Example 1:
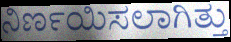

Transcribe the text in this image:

ನಿರ್ಣಯಿಸಲಾಗಿತ್ತು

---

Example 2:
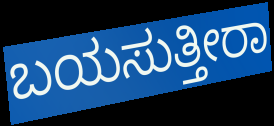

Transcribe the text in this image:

ಬಯಸುತ್ತೀರಾ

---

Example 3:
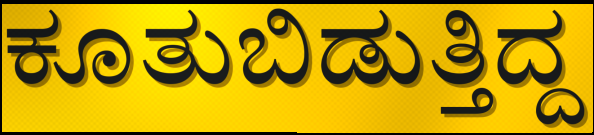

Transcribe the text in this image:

ಕೂತುಬಿಡುತ್ತಿದ್ದ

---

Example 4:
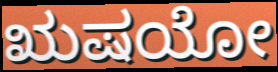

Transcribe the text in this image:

ಋಷಯೋ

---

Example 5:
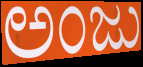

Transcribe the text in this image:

ಅಂಜು